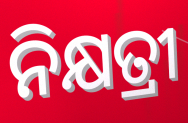
ନିକ୍ଷତ୍ରୀ